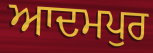
ਆਦਮਪੁਰ